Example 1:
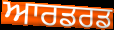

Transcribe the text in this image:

ਆਰਡਰਡ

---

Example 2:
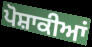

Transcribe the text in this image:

ਪੋਸ਼ਾਕੀਆਂ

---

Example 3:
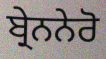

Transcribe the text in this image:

ਬ੍ਰੇਨਨੇਰੋ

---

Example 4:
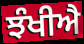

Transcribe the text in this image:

ਝੰਖੀਐ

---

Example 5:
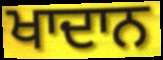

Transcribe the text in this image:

ਖਾਦਾਨ